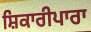
ਸ਼ਿਕਾਰੀਪਾਰਾ